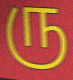
ரு